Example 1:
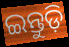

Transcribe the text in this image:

ଇନ୍ତୁଡ଼ି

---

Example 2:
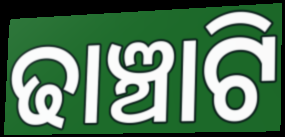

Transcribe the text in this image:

ଢାଞ୍ଚାଟି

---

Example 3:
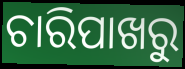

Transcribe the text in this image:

ଚାରିପାଖରୁ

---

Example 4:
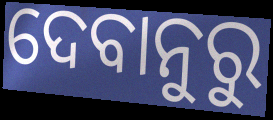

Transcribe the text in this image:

ଦେବାନୁରୁ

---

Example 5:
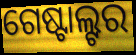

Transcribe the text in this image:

ଗେଷ୍ଟାଲ୍ଟର